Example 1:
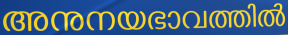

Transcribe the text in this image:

അനുനയഭാവത്തിൽ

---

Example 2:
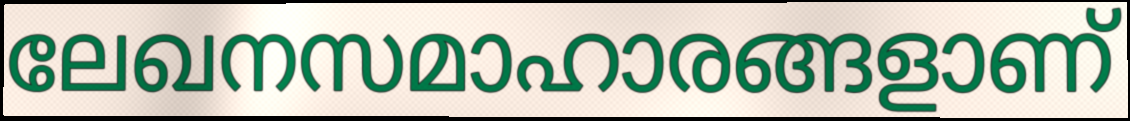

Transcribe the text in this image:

ലേഖനസമാഹാരങ്ങളാണ്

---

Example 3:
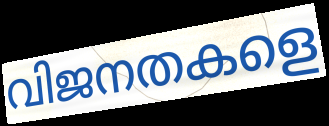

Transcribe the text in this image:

വിജനതകളെ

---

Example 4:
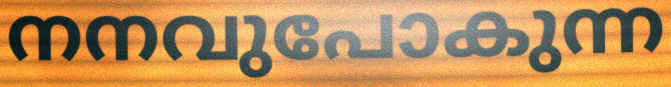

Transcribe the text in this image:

നനവുപോകുന്ന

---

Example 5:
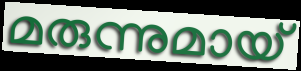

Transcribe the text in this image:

മരുന്നുമായ്